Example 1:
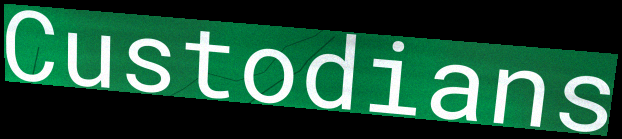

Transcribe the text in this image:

Custodians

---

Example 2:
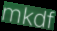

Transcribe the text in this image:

mkdf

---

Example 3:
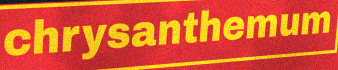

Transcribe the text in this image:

chrysanthemum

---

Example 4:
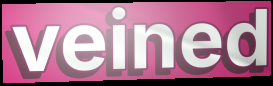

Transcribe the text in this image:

veined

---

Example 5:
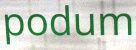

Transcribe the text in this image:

podum